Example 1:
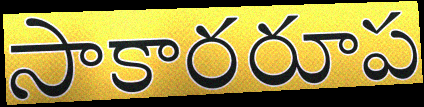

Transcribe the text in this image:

సాకారరూప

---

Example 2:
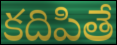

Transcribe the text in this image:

కదిపితే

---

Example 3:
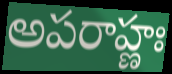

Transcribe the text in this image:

అపరాహ్ణః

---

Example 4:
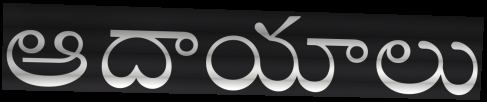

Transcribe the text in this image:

ఆదాయాలు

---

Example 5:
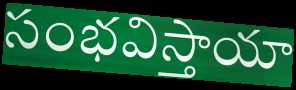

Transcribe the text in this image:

సంభవిస్తాయా